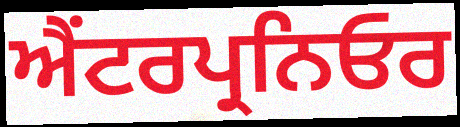
ਐਂਟਰਪ੍ਰਨਿਓਰ